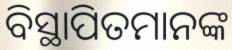
ବିସ୍ଥାପିତମାନଙ୍କ